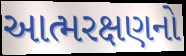
આત્મરક્ષણનો